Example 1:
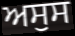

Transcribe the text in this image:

ਅਸੁਸ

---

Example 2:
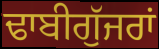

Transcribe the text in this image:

ਢਾਬੀਗੁੱਜਰਾਂ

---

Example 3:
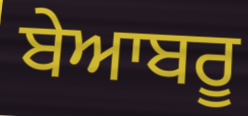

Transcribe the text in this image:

ਬੇਆਬਰੂ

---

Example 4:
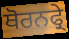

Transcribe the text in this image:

ਥੋਰਨਫ੍ਰੇ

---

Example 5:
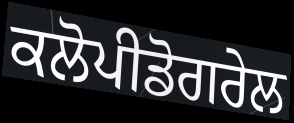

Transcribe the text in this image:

ਕਲੋਪੀਡੋਗਰੇਲ